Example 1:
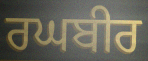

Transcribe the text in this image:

ਰਘਬੀਰ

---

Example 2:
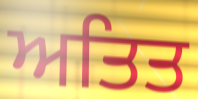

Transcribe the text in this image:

ਅਤਿਤ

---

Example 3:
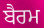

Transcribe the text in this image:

ਬੈਰਮ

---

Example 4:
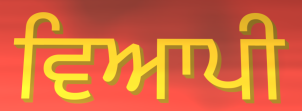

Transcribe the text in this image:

ਵਿਆਪੀ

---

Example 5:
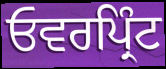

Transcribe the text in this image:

ਓਵਰਪ੍ਰਿੰਟ